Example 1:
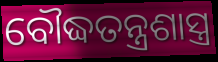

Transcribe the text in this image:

ବୌଦ୍ଧତନ୍ତ୍ରଶାସ୍ତ୍ର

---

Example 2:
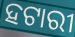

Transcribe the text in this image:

ହଟାରୀ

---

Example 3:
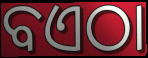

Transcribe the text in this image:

ବଏଠା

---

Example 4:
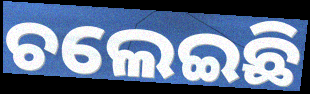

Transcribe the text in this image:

ଚଲେଇଛି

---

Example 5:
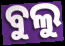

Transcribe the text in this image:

ବୁଲୁ